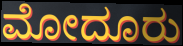
ಮೋದೂರು